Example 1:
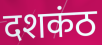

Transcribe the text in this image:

दशकंठ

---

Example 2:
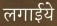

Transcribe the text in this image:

लगाईये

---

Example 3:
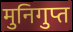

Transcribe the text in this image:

मुनिगुप्त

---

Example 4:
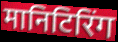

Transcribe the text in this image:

मानिटिरिंग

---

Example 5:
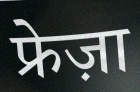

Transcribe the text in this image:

फ्रेज़ा